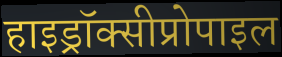
हाइड्रॉक्सीप्रोपाइल